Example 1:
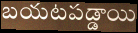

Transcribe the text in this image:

బయటపడ్డాయి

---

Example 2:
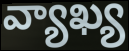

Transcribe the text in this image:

వ్యాఖ్య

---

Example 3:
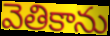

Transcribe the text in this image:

వెతికాను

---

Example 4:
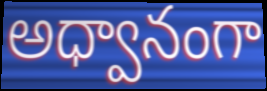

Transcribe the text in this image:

అధ్వానంగా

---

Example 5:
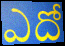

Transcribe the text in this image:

ఎదో